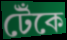
টেঁকে